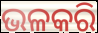
ଭଳକରି